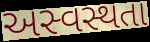
અસ્વસ્થતા